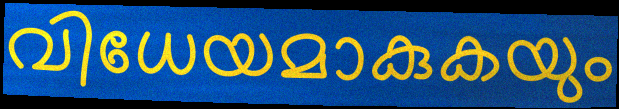
വിധേയമാകുകയും